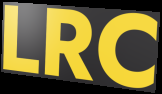
LRC